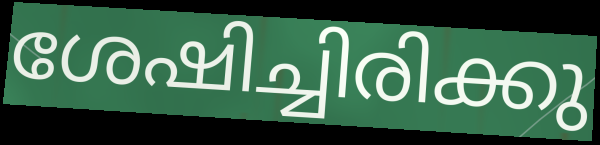
ശേഷിച്ചിരിക്കു